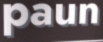
paun